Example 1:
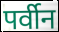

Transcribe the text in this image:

पर्वीन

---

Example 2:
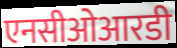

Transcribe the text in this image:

एनसीओआरडी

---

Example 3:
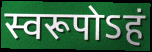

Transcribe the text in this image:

स्वरूपोऽहं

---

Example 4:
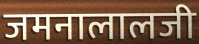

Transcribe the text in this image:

जमनालालजी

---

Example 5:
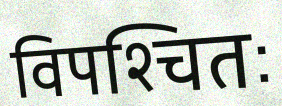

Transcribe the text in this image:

विपश्चितः